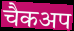
चैकअप